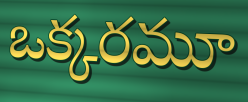
ఒక్కరమూ